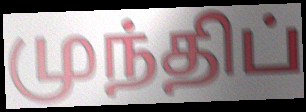
முந்திப்